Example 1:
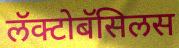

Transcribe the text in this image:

लॅक्टोबॅसिलस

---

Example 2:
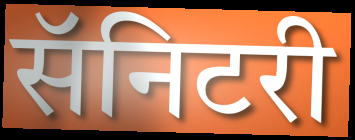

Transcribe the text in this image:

सॅनिटरी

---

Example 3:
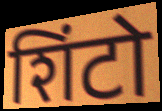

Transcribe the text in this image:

शिंटो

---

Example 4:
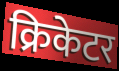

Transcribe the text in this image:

क्रिकेटर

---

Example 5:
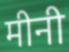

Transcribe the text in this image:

मीनी